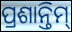
ପ୍ରଶାନ୍ତିମ୍